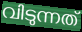
വിടുന്നത്